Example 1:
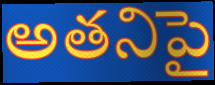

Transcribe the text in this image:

అతనిపై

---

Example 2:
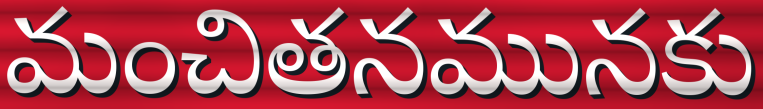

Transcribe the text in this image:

మంచితనమునకు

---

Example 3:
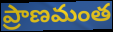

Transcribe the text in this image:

ప్రాణమంత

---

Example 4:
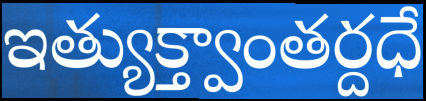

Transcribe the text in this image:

ఇత్యుక్త్వాంతర్దధే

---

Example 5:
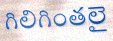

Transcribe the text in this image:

గిలిగింతలై